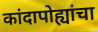
कांदापोह्यांचा